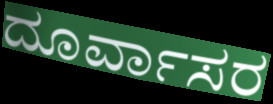
ದೂರ್ವಾಸರ